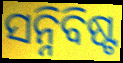
ସନ୍ନିବିଷ୍ଟ